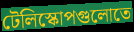
টেলিস্কোপগুলোতে